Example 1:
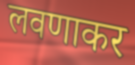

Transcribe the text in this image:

लवणाकर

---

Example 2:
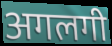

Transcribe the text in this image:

अगलगी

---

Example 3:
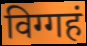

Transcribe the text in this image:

विग्गहं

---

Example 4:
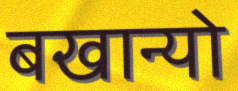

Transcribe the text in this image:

बखान्यो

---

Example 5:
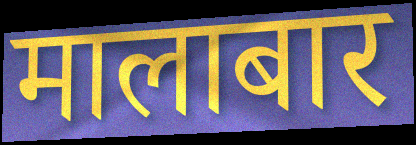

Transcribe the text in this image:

मालाबार